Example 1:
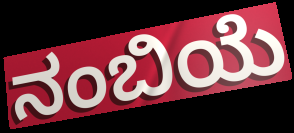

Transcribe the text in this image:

ನಂಬಿಯೆ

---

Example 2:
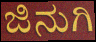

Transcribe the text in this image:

ಜಿನುಗಿ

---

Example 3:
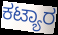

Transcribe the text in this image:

ಕಟ್ಯಾರ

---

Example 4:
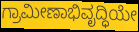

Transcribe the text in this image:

ಗ್ರಾಮೀಣಾಭಿವೃದ್ಧಿಯೇ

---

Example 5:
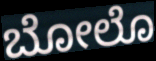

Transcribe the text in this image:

ಬೋಲೊ